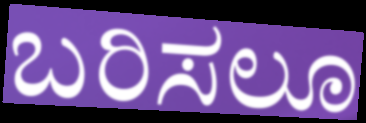
ಬರಿಸಲೂ